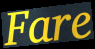
Fare